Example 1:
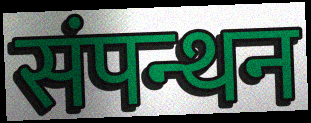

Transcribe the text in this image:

संपन्थन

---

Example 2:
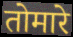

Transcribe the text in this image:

तोमारे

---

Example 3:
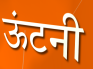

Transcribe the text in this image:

ऊंटनी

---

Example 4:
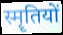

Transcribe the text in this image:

स्मॄतियों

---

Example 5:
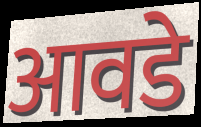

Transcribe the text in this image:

आवडे